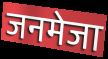
जनमेजा